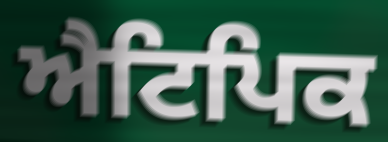
ਐਟਿਪਿਕ